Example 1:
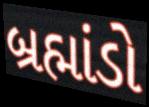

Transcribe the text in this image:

બ્રહ્માંડો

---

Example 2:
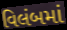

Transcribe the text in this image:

વિલંબમાં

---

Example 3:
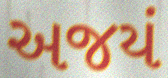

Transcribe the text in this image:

અજયં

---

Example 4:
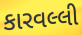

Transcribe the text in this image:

કારવલ્લી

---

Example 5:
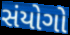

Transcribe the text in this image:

સંયોગો